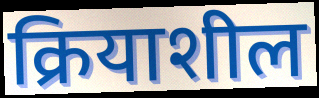
क्रियाशील